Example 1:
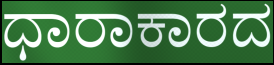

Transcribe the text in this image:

ಧಾರಾಕಾರದ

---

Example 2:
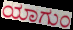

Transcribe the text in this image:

ಯಾಗುಂ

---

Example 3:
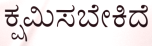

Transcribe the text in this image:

ಕ್ಷಮಿಸಬೇಕಿದೆ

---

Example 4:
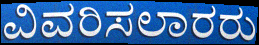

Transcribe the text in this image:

ವಿವರಿಸಲಾರರು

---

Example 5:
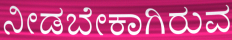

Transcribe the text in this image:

ನೀಡಬೇಕಾಗಿರುವ